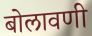
बोलावणी